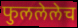
फुललेलेच